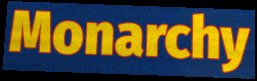
Monarchy